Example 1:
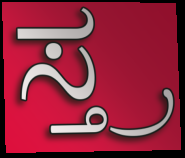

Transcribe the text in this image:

ಸ್ತ್ರ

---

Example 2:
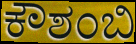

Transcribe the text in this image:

ಕೌಶಂಬಿ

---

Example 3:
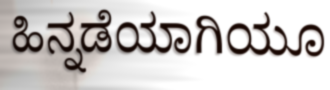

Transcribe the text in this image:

ಹಿನ್ನಡೆಯಾಗಿಯೂ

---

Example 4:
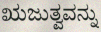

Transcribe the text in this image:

ಋಜುತ್ವವನ್ನು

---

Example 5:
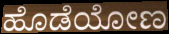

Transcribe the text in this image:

ಹೊಡೆಯೋಣ